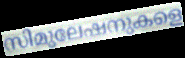
സിമുലേഷനുകളെ